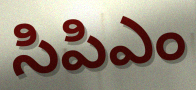
సిపిఎం